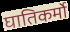
घातिकर्मो